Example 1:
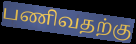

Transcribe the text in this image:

பணிவதற்கு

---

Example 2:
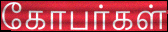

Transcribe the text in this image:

கோபர்கள்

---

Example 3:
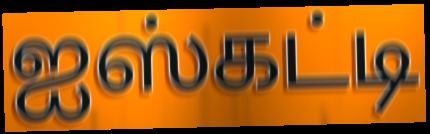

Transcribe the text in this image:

ஐஸ்கட்டி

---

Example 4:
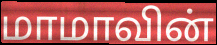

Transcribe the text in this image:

மாமாவின்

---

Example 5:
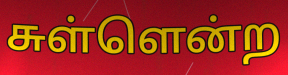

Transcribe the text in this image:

சுள்ளென்ற